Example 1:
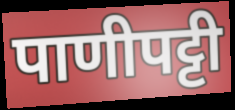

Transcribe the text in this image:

पाणीपट्टी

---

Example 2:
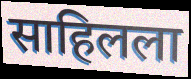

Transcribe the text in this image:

साहिलला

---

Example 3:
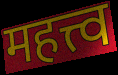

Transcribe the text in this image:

महत्त्व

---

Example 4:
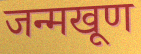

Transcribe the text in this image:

जन्मखूण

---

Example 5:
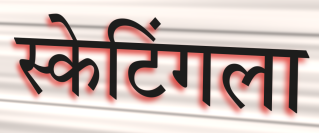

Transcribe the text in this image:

स्केटिंगला